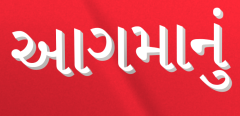
આગમાનું